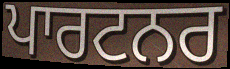
ਪਾਰਟਨਰ